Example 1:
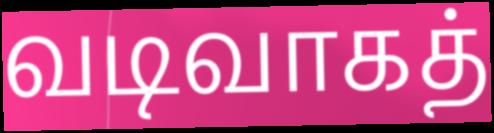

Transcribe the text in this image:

வடிவாகத்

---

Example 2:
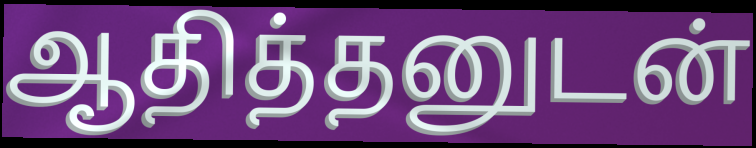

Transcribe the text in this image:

ஆதித்தனுடன்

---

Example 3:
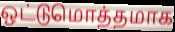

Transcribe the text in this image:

ஒட்டுமொத்தமாக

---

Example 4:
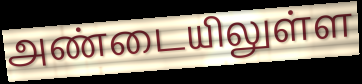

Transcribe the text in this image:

அண்டையிலுள்ள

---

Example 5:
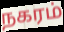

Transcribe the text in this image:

நகரம்